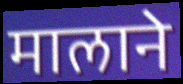
मालाने